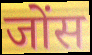
जोंस